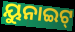
ୟୁନାଇଟ୍